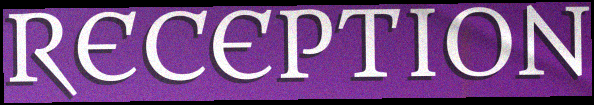
RECEPTION